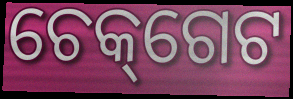
ଚେକ୍‌ଗେଟ